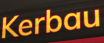
Kerbau